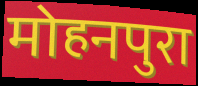
मोहनपुरा